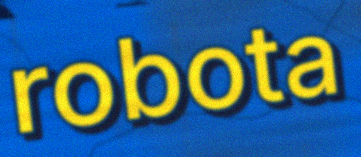
robota